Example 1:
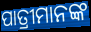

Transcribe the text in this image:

ପାତ୍ରୀମାନଙ୍କ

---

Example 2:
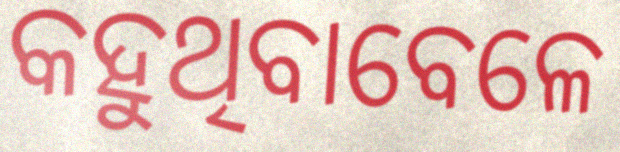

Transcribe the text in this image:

କହୁଥିବାବେଳେ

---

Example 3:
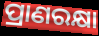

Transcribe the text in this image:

ପ୍ରାଣରକ୍ଷା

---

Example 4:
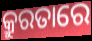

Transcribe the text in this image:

କ୍ରୁରତାରେ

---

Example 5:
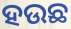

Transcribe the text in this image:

ହଉଛ